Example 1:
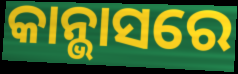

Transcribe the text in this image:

କାନ୍ଭାସରେ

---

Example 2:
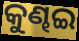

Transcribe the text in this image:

କୁଣ୍ଢଇ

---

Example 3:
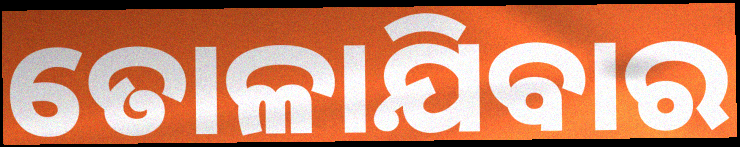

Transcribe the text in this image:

ତୋଳାଯିବାର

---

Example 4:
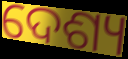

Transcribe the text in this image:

ଦେଶ୍ୟ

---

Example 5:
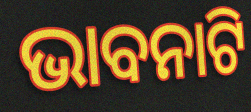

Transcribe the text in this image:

ଭାବନାଟି